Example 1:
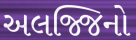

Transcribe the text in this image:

અલજ્જિનો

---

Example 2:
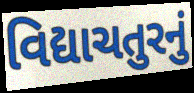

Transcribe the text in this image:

વિદ્યાચતુરનું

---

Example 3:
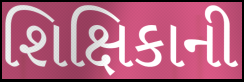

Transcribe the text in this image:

શિક્ષિકાની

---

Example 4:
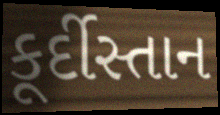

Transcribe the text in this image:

કૂર્દીસ્તાન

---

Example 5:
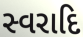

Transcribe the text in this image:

સ્વરાદિ